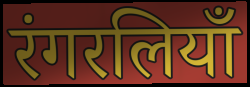
रंगरलियाँ